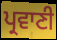
ਪ੍ਰਵਾਣੀ